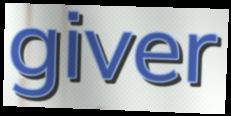
giver